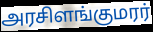
அரசிளங்குமரர்